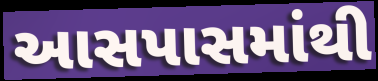
આસપાસમાંથી